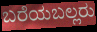
ಬರೆಯಬಲ್ಲರು